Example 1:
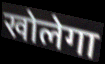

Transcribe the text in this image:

खोलेगा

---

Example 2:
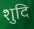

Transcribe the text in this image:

शुदि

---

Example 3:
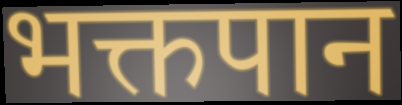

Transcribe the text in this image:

भक्तपान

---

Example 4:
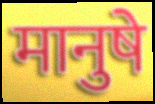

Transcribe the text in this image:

मानुषे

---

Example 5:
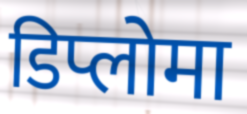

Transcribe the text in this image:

डिप्‍लोमा